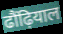
ढौंढ़ियाल